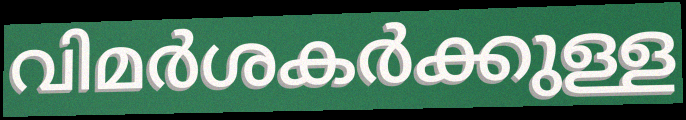
വിമർശകർക്കുള്ള